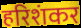
हरिशंकर